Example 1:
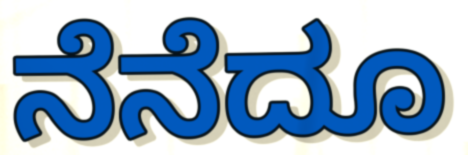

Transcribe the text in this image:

ನೆನೆದೂ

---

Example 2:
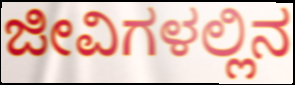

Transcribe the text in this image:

ಜೀವಿಗಳಲ್ಲಿನ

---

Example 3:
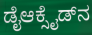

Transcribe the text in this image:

ಡೈಆಕ್ಸೈಡ್‌ನ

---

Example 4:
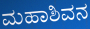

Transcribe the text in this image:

ಮಹಾಶಿವನ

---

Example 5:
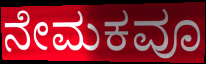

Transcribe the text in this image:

ನೇಮಕವೂ